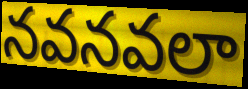
నవనవలా